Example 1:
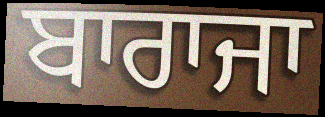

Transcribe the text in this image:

ਬਾਰਾਜਾ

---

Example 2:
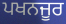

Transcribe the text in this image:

ਪਖਨਜੂਰ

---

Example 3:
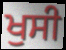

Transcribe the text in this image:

ਖੁਸੀ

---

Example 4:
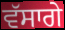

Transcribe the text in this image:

ਵੱਸਾਗੇ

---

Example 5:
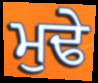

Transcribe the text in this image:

ਮੁਢੇ